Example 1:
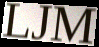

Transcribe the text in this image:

LJM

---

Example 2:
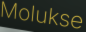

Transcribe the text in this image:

Molukse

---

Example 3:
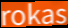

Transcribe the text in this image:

rokas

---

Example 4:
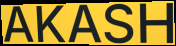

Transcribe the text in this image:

AKASH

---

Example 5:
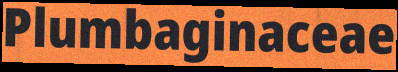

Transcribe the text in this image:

Plumbaginaceae